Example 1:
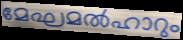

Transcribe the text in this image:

മേഘമൽഹാറും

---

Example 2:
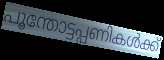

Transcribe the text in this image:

പൂന്തോട്ടപ്പണികൾക്ക്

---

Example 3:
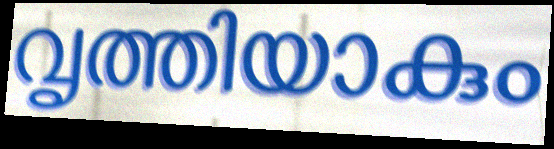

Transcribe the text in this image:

വൃത്തിയാകും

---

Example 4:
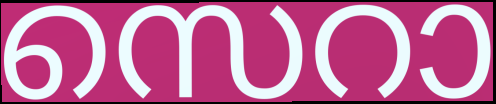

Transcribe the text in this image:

സെറാ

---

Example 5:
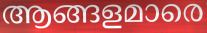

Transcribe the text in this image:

ആങ്ങളമാരെ